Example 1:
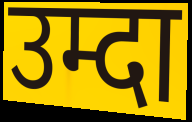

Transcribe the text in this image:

उम्‍दा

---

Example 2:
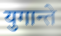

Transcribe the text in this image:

युगान्ते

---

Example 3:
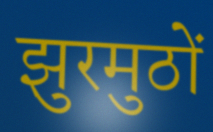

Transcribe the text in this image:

झुरमुठों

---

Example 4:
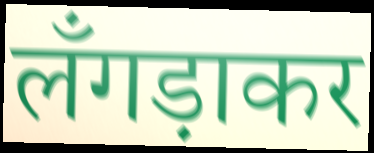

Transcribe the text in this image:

लँगड़ाकर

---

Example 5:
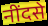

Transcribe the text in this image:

नींदसे